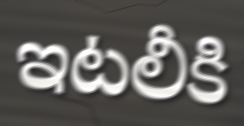
ఇటలీకి